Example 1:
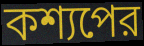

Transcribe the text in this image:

কশ্যপের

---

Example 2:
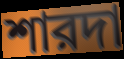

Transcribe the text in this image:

শারদা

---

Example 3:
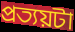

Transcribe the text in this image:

প্রত্যয়টা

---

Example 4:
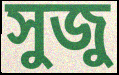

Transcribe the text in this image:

সুজু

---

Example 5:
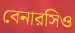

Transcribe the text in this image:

বেনারসিও